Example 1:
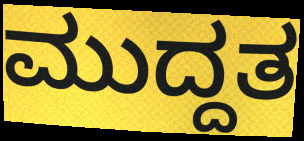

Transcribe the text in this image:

ಮುದ್ದತ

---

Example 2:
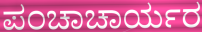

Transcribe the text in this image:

ಪಂಚಾಚಾರ್ಯರ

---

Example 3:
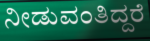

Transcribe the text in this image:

ನೀಡುವಂತಿದ್ದರೆ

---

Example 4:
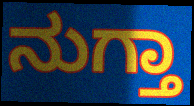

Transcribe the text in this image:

ನುಗ್ತಾ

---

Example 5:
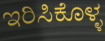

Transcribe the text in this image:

ಇರಿಸಿಕೊಳ್ಳ